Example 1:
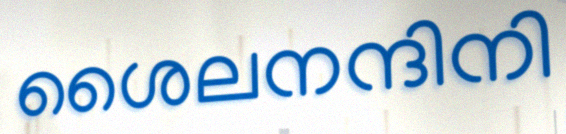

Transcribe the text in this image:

ശൈലനന്ദിനി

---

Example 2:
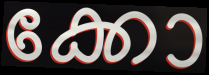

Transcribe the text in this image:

ക്കോ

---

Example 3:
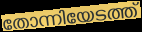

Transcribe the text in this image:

തോന്നിയേടത്ത്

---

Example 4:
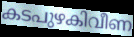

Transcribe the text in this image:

കടപുഴകിവീണ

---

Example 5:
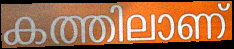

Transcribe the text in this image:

കത്തിലാണ്